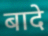
बादे